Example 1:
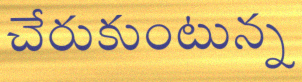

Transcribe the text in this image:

చేరుకుంటున్న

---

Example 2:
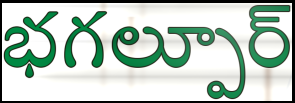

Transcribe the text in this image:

భగల్పూర్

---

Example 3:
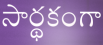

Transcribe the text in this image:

సార్థకంగా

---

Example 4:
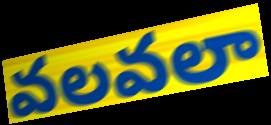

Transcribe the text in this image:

వలవలా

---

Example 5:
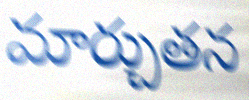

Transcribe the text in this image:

మార్చుతన